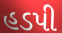
હડપી